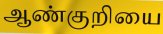
ஆண்குறியை